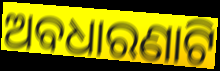
ଅବଧାରଣାଟି